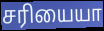
சரியையா